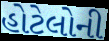
હોટેલોની